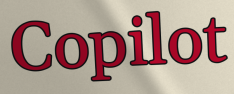
Copilot